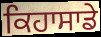
ਕਿਹਾਸਾਡੇ